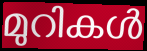
മുറികൾ